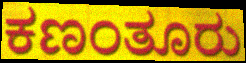
ಕಣಂತೂರು